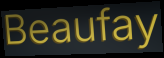
Beaufay